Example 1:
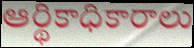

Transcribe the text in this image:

ఆర్థికాధికారాలు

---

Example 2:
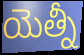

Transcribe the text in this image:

యెత్నీ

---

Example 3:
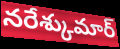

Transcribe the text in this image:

నరేశ్కుమార్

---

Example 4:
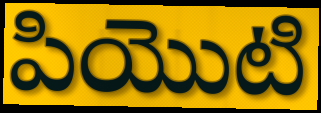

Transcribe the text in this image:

పియొటి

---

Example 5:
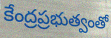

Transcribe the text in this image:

కేంద్రప్రభుత్వంతో